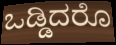
ಒಡ್ಡಿದರೊ